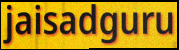
jaisadguru